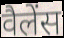
वैलेंस